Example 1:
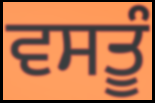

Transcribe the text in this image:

ਵਸਤੂੰ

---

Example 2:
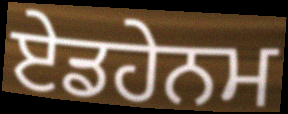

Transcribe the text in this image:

ਏਡਹੇਨਮ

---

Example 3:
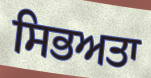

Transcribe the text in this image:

ਸਿਭਅਤਾ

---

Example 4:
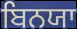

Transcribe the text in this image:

ਬਿਨਯਾ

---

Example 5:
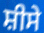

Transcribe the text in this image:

ਸ਼ੀਸੇ